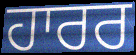
ਹਾਰਰ